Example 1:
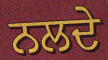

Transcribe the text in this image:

ਨਲਦੇ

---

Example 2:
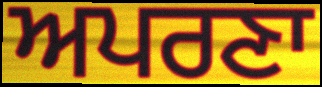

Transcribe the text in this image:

ਅਪਰਣਾ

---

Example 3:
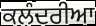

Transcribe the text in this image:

ਕਲੰਦਰੀਆ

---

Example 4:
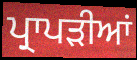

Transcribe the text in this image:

ਪ੍ਰਾਪੜੀਆਂ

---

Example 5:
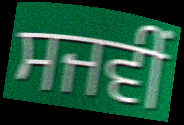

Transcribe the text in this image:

ਸਜਵੀਂ